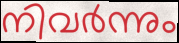
നിവർന്നും